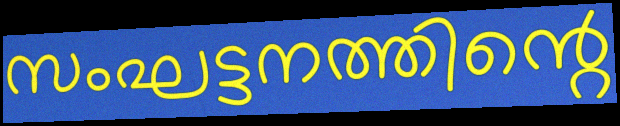
സംഘട്ടനത്തിന്റെ